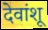
देवांशू